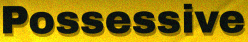
Possessive